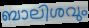
ബാലിശവും